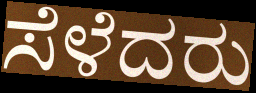
ಸೆಳೆದರು